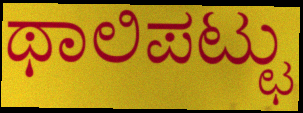
ಥಾಲಿಪಟ್ಟು